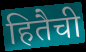
हितैची